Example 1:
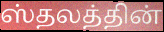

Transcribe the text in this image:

ஸ்தலத்தின்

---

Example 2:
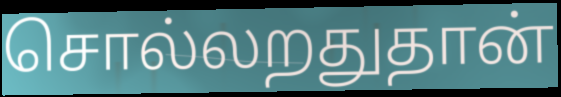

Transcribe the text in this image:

சொல்லறதுதான்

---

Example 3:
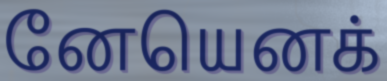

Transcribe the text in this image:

னேயெனக்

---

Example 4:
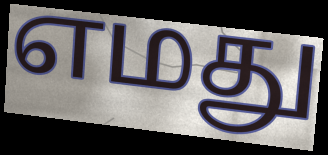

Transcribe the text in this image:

எமது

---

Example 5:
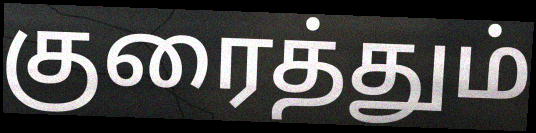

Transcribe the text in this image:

குரைத்தும்